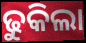
ଢୁକିଲା